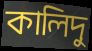
কালিদু